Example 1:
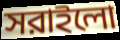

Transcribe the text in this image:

সরাইলো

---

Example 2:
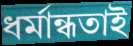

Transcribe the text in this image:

ধর্মান্ধতাই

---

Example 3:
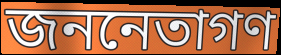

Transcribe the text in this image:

জননেতাগণ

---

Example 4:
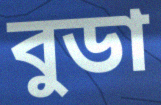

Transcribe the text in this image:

বুডা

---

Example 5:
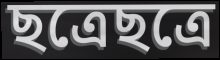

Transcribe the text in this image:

ছত্রেছত্রে